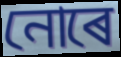
নোৰে